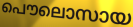
പൌലൊസായ